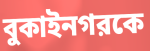
বুকাইনগরকে